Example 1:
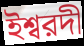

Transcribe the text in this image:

ইশ্বরদী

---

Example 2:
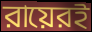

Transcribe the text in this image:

রায়েরই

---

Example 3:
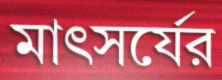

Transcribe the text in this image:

মাৎসর্যের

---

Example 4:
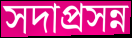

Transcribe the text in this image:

সদাপ্রসন্ন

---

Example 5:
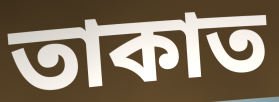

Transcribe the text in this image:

তাকাত